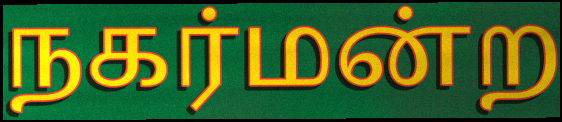
நகர்மன்ற